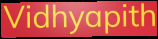
Vidhyapith